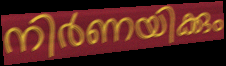
നിർണയിക്കും